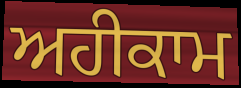
ਅਹੀਕਾਮ